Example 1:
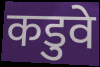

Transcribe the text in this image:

कडुवे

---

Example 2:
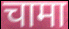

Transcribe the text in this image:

चामा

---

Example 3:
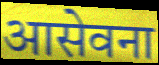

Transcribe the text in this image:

आसेवना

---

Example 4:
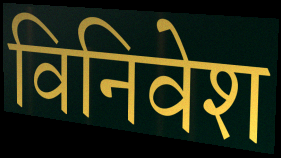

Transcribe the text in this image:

विनिवेश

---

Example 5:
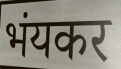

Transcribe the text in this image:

भंयकर